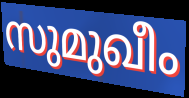
സുമുഖീം